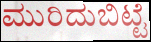
ಮುರಿದುಬಿಟ್ಟೆ